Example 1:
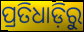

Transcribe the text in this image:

ପ୍ରତିଧାଡ଼ିରୁ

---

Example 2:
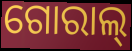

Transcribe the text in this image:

ଗୋରାଲ୍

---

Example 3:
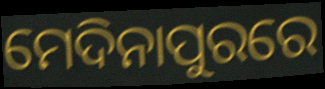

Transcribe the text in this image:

ମେଦିନାପୁରରେ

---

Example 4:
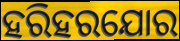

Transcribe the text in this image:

ହରିହରଯୋର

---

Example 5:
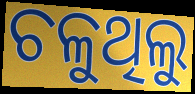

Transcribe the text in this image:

ଚଳୁଥିଲୁ